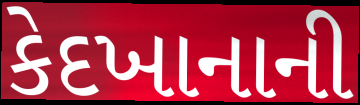
કેદખાનાની